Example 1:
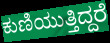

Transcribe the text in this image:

ಕುಣಿಯುತ್ತಿದ್ದರೆ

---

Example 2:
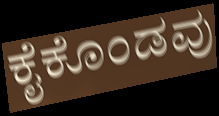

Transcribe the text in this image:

ಕೈಕೊಂಡವು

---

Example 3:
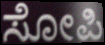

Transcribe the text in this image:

ಸೋಪಿ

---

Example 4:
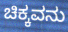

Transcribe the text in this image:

ಚಿಕ್ಕವನು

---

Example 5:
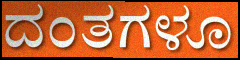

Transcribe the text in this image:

ದಂತಗಳೂ